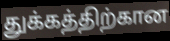
துக்கத்திற்கான